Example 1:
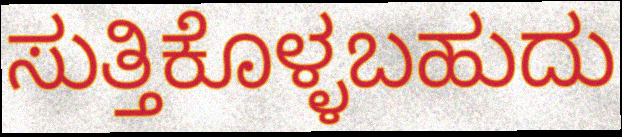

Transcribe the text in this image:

ಸುತ್ತಿಕೊಳ್ಳಬಹುದು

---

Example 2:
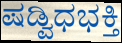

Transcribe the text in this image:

ಷಡ್ವಿಧಭಕ್ತಿ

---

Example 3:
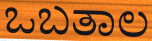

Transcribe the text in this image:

ಒಬತಾಲ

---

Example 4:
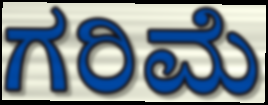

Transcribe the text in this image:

ಗರಿಮೆ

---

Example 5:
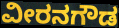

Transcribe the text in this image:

ವೀರನಗೌಡ